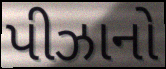
પીઝાનો